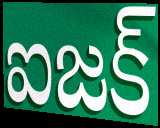
ఐజక్